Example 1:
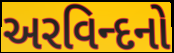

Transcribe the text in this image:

અરવિન્દનો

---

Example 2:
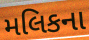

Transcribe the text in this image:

મલિકના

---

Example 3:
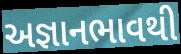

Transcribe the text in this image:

અજ્ઞાનભાવથી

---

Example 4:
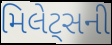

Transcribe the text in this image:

મિલેટ્સની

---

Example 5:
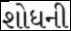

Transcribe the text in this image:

શોધની